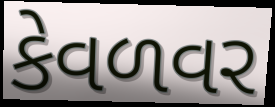
કેવળવર